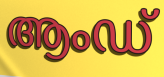
ആംഡ്